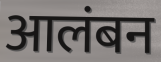
आलंबन